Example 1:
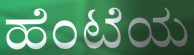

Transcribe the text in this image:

ಹೆಂಟೆಯ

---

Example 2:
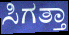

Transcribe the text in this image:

ಸಿಗತ್ತಾ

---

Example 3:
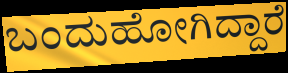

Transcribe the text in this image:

ಬಂದುಹೋಗಿದ್ದಾರೆ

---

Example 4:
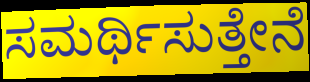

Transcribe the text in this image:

ಸಮರ್ಥಿಸುತ್ತೇನೆ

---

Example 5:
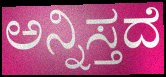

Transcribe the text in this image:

ಅನ್ನಿಸ್ತದೆ